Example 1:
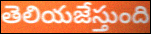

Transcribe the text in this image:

తెలియజేస్తుంది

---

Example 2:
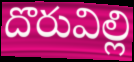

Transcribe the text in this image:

దొరువిల్లి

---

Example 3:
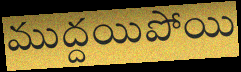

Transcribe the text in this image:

ముద్దయిపోయి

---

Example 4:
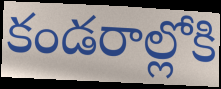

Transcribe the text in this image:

కండరాల్లోకి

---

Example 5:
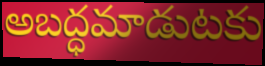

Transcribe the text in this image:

అబద్ధమాడుటకు